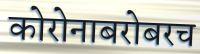
कोरोनाबरोबरच